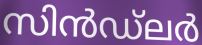
സിൻഡ്ലർ